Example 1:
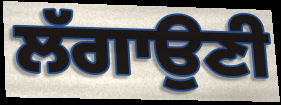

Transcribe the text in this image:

ਲੱਗਾਉਣੀ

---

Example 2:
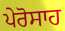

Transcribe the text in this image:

ਪੇਰੋਸਾਹ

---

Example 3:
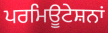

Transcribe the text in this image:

ਪਰਮਿਊਟੇਸ਼ਨਾਂ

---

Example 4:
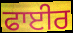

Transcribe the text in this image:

ਫਾਈਰ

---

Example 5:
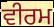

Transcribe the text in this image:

ਵੀਰਮ